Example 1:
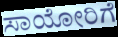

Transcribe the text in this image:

ಸಾಯೋರಿಗೆ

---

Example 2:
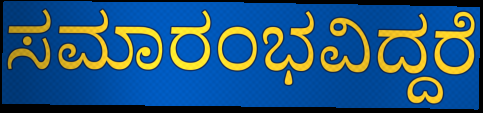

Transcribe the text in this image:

ಸಮಾರಂಭವಿದ್ದರೆ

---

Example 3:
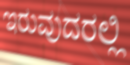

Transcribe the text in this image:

ಇರುವುದರಲ್ಲಿ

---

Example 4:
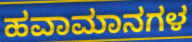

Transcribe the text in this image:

ಹವಾಮಾನಗಳ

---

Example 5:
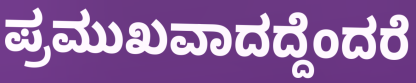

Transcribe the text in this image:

ಪ್ರಮುಖವಾದದ್ದೆಂದರೆ